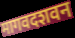
मागवदशवन